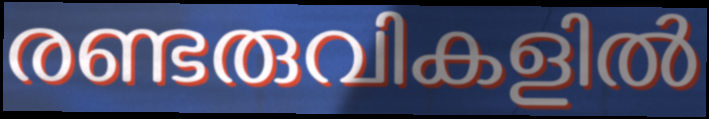
രണ്ടരുവികളിൽ